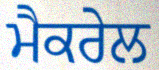
ਮੈਕਰੇਲ